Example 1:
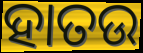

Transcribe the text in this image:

ହାତଉ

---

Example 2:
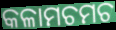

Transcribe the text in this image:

କଳାମଚମଚ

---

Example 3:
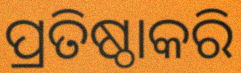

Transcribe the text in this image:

ପ୍ରତିଷ୍ଠାକରି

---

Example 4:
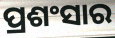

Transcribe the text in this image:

ପ୍ରଶଂସାର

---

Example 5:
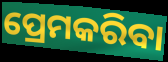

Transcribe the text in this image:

ପ୍ରେମକରିବା